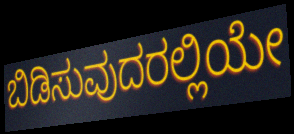
ಬಿಡಿಸುವುದರಲ್ಲಿಯೇ